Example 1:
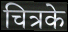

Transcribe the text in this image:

चित्रके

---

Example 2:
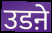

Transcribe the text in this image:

उडऩे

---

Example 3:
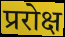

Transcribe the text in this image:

प्ररोक्ष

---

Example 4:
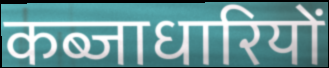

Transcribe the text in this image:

कब्जाधारियों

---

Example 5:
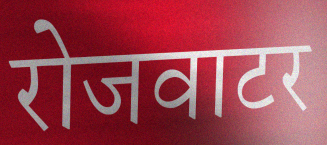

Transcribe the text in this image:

रोजवाटर